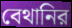
বেথানির